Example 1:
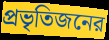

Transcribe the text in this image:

প্রভৃতিজনের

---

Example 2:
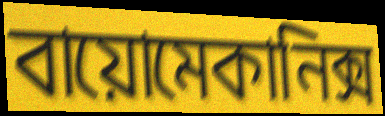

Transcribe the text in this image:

বায়োমেকানিক্স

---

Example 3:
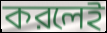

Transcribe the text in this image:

করলেই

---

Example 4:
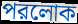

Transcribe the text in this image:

পরলোক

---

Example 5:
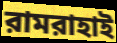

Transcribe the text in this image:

রামরাহাই